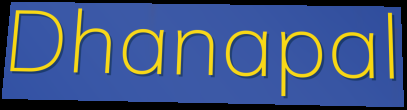
Dhanapal